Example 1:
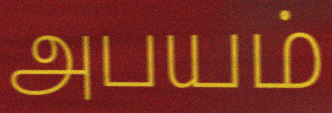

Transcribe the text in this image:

அபயம்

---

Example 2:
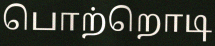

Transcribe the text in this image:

பொற்றொடி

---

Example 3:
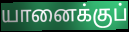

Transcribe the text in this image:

யானைக்குப்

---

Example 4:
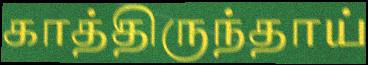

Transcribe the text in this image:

காத்திருந்தாய்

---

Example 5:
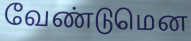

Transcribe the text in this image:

வேண்டுமென